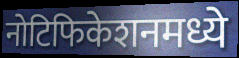
नोटिफिकेशनमध्ये